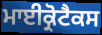
ਮਾਈਕ੍ਰੋਟੈਕਸ